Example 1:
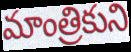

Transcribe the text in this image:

మాంత్రికుని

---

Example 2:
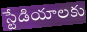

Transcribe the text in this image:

స్టేడియాలకు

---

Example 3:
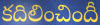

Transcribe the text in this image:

కదిలించిందీ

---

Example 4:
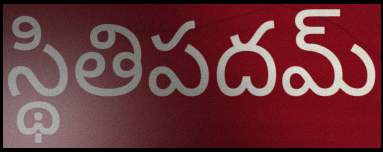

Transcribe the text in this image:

స్థితిపదమ్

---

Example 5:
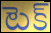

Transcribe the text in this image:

టెక్